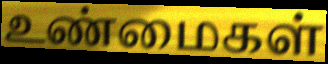
உண்மைகள்